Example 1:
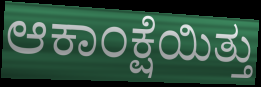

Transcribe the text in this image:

ಆಕಾಂಕ್ಷೆಯಿತ್ತು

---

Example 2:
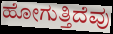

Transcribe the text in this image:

ಹೋಗುತ್ತಿದೆವು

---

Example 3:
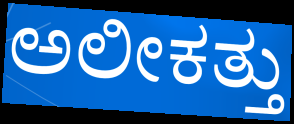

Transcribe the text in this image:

ಅಲೀಕತ್ತು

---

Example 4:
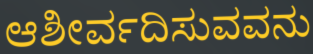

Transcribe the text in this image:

ಆಶೀರ್ವದಿಸುವವನು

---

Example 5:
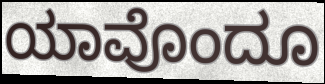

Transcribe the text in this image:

ಯಾವೊಂದೂ